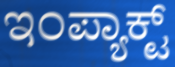
ಇಂಪ್ಯಾಕ್ಟ್